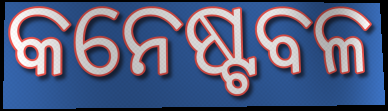
କନେଷ୍ଟବଳ